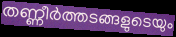
തണ്ണീർത്തടങ്ങളുടെയും